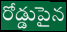
రోడ్డుపైన